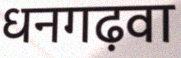
धनगढ़वा